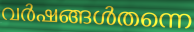
വർഷങ്ങൾതന്നെ